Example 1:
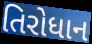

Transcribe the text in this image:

તિરોધાન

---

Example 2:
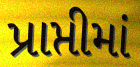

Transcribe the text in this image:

પ્રાપ્તીમાં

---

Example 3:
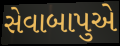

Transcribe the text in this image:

સેવાબાપુએ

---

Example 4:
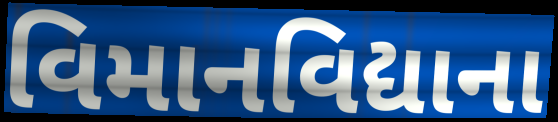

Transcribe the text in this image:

વિમાનવિદ્યાના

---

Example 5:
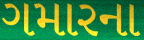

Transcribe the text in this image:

ગમારના